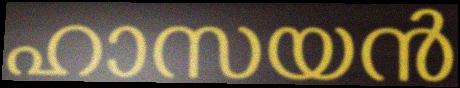
ഹാസയൻ